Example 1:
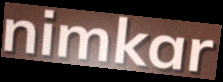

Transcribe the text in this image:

nimkar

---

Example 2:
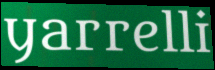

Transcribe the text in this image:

yarrelli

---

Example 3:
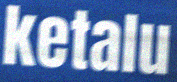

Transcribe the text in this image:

ketalu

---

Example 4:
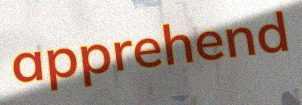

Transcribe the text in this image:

apprehend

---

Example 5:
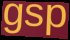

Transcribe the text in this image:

gsp